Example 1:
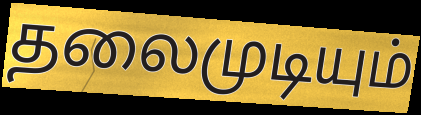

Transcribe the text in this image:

தலைமுடியும்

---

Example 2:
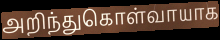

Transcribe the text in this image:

அறிந்துகொள்வாயாக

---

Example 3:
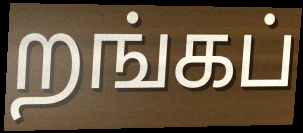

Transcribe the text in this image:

றங்கப்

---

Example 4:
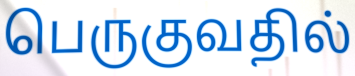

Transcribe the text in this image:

பெருகுவதில்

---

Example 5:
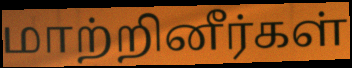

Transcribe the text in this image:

மாற்றினீர்கள்